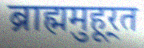
ब्राह्ममुहूर्त